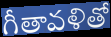
గీతావళితో